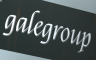
galegroup